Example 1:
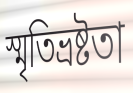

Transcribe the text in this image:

স্মৃতিভ্রষ্টতা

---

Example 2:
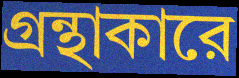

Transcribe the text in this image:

গ্রন্থাকারে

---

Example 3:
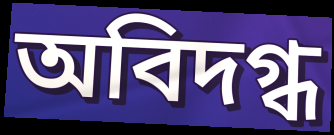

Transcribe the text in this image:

অবিদগ্ধ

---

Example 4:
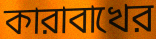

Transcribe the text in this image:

কারাবাখের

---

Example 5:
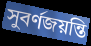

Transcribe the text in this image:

সুবর্ণজয়ন্তি